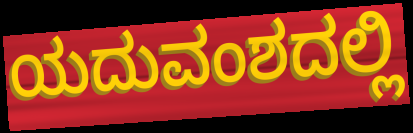
ಯದುವಂಶದಲ್ಲಿ